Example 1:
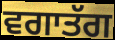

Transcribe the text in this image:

ਵਗਾਤੱਗ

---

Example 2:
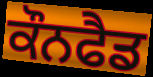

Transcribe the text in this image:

ਕੌਨਫੈਡ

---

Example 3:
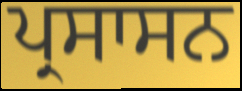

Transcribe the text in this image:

ਪ੍ਰਸਾਸਨ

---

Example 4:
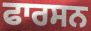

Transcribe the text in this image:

ਫਾਰਸਨ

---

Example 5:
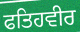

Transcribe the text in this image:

ਫਤਿਹਵੀਰ